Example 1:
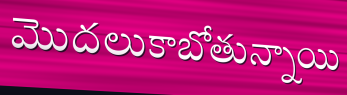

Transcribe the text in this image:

మొదలుకాబోతున్నాయి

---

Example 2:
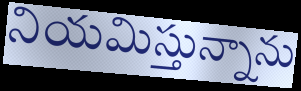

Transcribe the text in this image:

నియమిస్తున్నాను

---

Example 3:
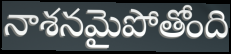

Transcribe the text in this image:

నాశనమైపోతోంది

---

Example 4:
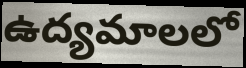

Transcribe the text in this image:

ఉద్యమాలలో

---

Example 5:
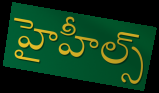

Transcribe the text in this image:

హైహీల్స్